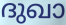
ദുഖാ